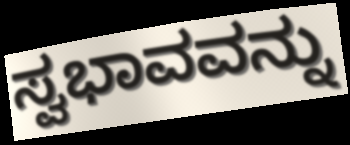
ಸ್ವಭಾವವನ್ನು